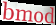
bmod